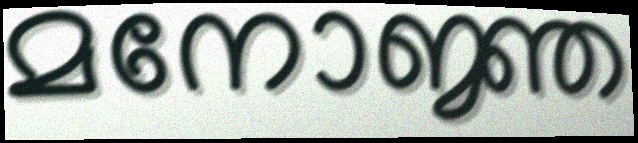
മനോജ്ഞ